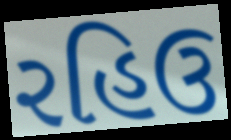
રહિઉ